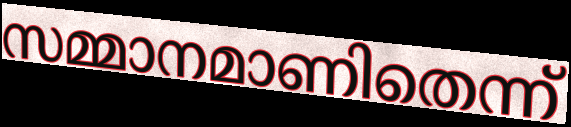
സമ്മാനമാണിതെന്ന്